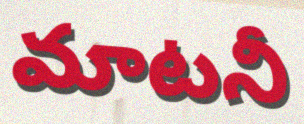
మాటనీ